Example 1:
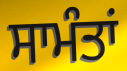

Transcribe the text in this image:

ਸਾਮੰਤਾਂ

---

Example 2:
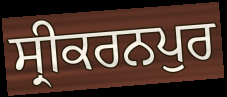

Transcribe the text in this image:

ਸ੍ਰੀਕਰਨਪੁਰ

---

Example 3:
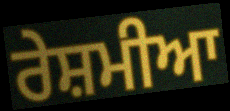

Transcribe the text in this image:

ਰੇਸ਼ਮੀਆ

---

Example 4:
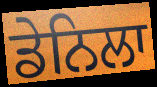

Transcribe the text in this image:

ਡੇਨਿਲਾ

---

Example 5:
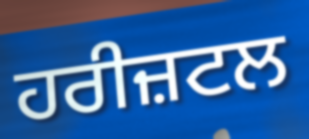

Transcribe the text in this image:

ਹਰੀਜ਼ਟਲ